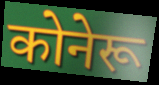
कोनेरू